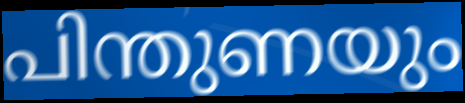
പിന്തുണയും